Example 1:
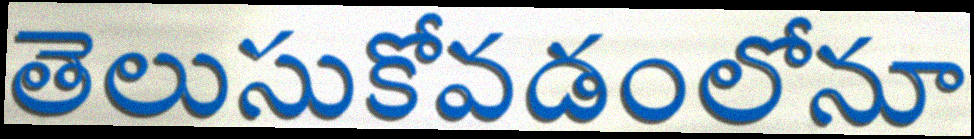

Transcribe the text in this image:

తెలుసుకోవడంలోనూ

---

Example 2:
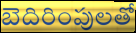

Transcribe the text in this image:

బెదిరింపులతో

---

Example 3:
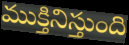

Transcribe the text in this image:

ముక్తినిస్తుంది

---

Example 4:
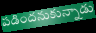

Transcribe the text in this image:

పడిందనుకున్నాడు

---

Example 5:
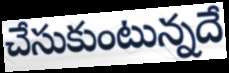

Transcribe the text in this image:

చేసుకుంటున్నదే